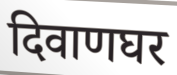
दिवाणघर